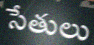
సేతులు